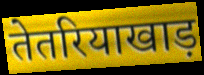
तेतरियाखाड़